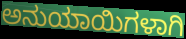
ಅನುಯಾಯಿಗಳಾಗಿ